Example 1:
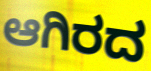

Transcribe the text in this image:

ಆಗಿರದ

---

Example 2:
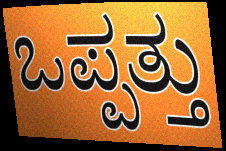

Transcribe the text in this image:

ಒಪ್ಪತ್ತು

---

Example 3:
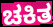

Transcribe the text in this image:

ಚಕಿತ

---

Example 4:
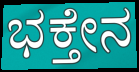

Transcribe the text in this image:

ಭಕ್ತೇನ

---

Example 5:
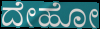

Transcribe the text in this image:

ದೇಹೋ